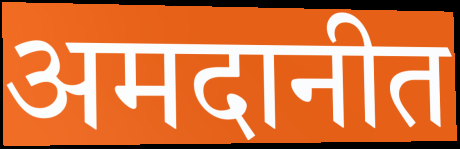
अमदानीत